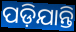
ପଡ଼ିଯାନ୍ତି